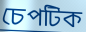
চেপটিক